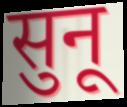
सुनू